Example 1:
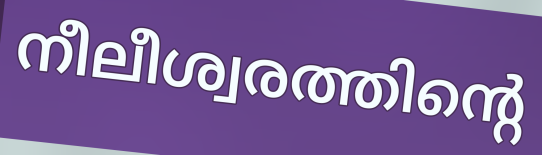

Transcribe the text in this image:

നീലീശ്വരത്തിന്റെ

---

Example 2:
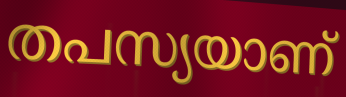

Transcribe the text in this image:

തപസ്യയാണ്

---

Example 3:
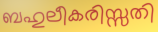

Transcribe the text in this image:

ബഹുലീകരിസ്സതി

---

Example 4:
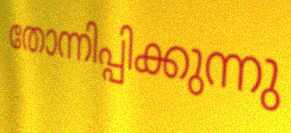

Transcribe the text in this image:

തോന്നിപ്പിക്കുന്നു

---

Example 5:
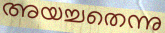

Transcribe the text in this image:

അയച്ചതെന്നു